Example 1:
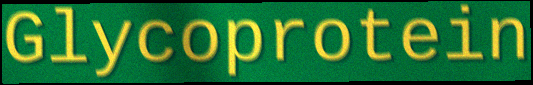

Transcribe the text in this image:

Glycoprotein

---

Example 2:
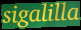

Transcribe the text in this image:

sigalilla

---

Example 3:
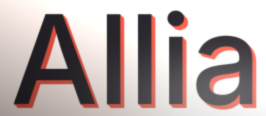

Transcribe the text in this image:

Allia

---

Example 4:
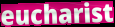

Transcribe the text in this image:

eucharist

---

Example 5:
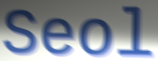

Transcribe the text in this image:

Seol